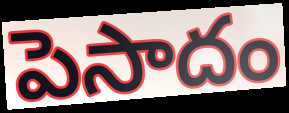
పెసాదం